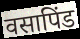
वसापिंड